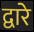
द्वारे